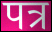
पत्र